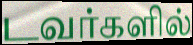
டவர்களில்